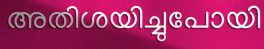
അതിശയിച്ചുപോയി